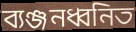
ব্যঞ্জনধ্বনিত